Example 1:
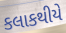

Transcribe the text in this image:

કલાકથીયે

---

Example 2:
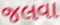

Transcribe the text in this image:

જલવા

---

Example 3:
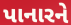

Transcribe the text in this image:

પાનારને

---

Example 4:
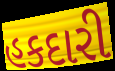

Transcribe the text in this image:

હકદારી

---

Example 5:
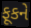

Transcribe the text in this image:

ફૂકને